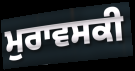
ਮੁਰਾਵਸਕੀ